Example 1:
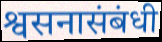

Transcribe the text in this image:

श्वसनासंबंधी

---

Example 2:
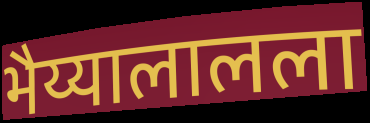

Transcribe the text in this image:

भैय्यालालला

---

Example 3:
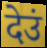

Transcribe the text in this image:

देउं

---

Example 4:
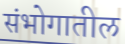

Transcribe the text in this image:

संभोगातील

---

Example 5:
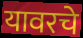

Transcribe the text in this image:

यावरचे